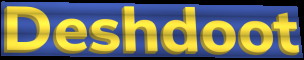
Deshdoot